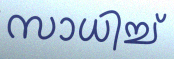
സാധിച്ച്